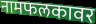
नामफलकावर